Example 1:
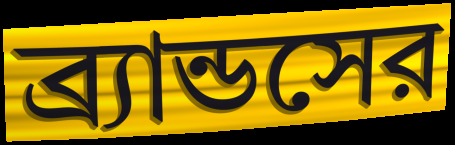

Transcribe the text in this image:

ব্র্যান্ডসের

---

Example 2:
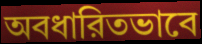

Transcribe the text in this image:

অবধারিতভাবে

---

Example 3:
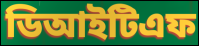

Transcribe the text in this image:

ডিআইটিএফ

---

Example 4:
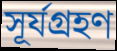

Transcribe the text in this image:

সূর্যগ্রহণ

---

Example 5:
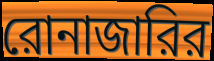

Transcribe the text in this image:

রোনাজারির